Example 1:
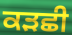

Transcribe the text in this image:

ਕੜਛੀ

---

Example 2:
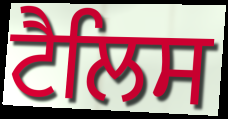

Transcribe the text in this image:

ਟੈਲਿਸ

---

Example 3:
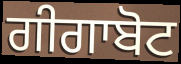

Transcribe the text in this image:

ਗੀਗਾਬੋਟ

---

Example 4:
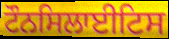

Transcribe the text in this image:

ਟੌਨਸਿਲਾਈਟਿਸ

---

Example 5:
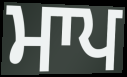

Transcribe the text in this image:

ਮਾਪ